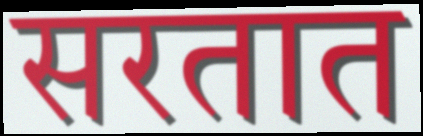
सरतात